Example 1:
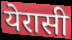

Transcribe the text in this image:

येरासी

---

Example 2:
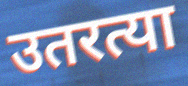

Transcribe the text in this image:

उतरत्या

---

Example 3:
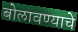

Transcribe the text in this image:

बोलावण्याचे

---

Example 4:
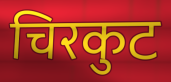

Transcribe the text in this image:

चिरकुट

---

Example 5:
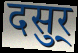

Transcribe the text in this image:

दसुर्